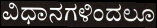
ವಿಧಾನಗಳಿಂದಲೂ